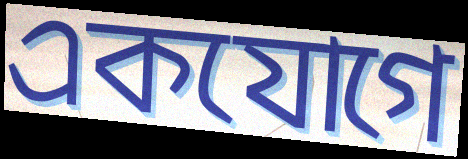
একযোগে